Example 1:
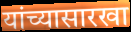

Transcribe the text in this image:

यांच्यासारखा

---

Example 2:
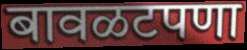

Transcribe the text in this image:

बावळटपणा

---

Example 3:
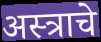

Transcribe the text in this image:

अस्त्राचे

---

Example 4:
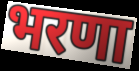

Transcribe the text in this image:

भरणा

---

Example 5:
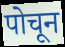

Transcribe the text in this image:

पोचून